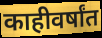
काहीवर्षांत